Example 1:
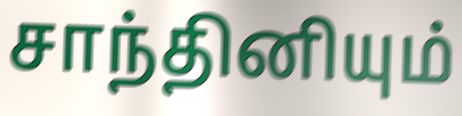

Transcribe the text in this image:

சாந்தினியும்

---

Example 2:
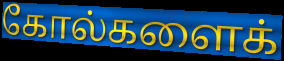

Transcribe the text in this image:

கோல்களைக்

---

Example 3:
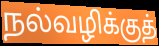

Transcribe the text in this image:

நல்வழிக்குத்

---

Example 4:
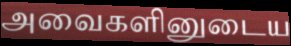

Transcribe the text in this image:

அவைகளினுடைய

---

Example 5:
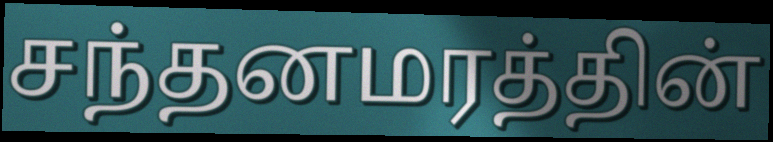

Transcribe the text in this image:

சந்தனமரத்தின்